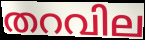
തറവില